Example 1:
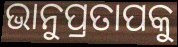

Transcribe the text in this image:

ଭାନୁପ୍ରତାପକୁ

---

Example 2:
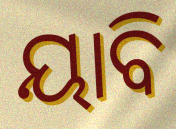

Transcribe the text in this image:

ୟାବି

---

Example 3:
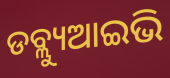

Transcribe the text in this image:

ଡବ୍ଲ୍ୟୁଆଇଭି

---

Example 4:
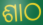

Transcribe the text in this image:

ଶାଠ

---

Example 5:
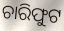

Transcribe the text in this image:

ଚାରିଫୁଟ